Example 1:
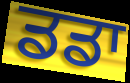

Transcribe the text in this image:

ਡਡਾ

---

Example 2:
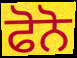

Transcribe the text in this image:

ਫੋਨੋ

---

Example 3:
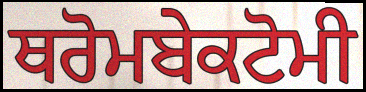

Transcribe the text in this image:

ਥਰੋਮਬੇਕਟੋਮੀ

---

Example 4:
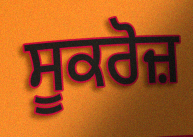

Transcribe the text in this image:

ਸੂਕਰੋਜ਼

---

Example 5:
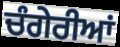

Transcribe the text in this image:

ਚੰਗੇਰੀਆਂ